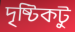
দৃষ্টিকটু